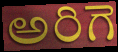
అరిగె